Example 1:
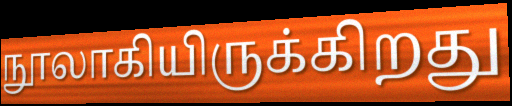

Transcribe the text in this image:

நூலாகியிருக்கிறது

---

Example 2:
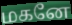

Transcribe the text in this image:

மகனே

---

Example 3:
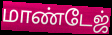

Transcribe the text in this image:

மாண்டேஜ்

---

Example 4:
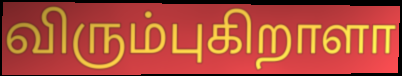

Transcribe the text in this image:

விரும்புகிறாளா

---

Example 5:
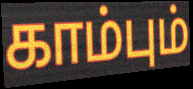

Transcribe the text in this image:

காம்பும்